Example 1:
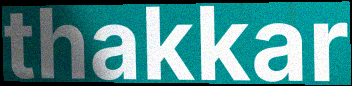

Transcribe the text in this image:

thakkar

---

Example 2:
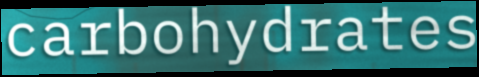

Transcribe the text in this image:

carbohydrates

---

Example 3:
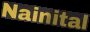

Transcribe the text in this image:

Nainital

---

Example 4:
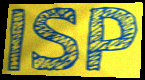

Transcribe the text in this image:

ISP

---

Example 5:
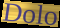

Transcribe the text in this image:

Dolo